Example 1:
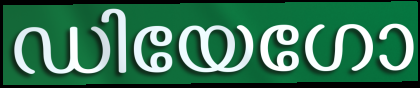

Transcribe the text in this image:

ഡിയേഗോ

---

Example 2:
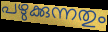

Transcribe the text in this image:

പഴുക്കുന്നതും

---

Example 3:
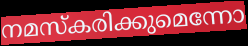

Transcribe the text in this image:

നമസ്കരിക്കുമെന്നോ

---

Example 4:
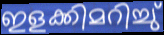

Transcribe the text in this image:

ഇളക്കിമറിച്ചു്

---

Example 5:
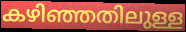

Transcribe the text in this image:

കഴിഞ്ഞതിലുള്ള